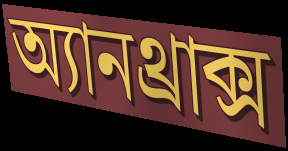
অ্যানথ্রাক্স